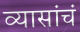
व्यासांचं